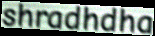
shradhdha